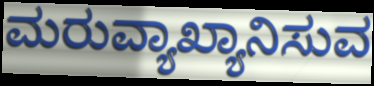
ಮರುವ್ಯಾಖ್ಯಾನಿಸುವ